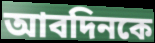
আবদিনকে